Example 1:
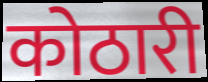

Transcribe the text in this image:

कोठारी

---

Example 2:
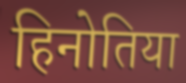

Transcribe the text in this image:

हिनोतिया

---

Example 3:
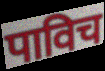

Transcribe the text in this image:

पाविच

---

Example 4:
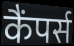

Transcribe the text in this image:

कैंपर्स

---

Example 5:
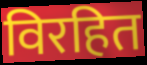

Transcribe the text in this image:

विरहित